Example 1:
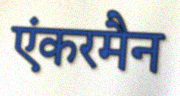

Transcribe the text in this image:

एंकरमैन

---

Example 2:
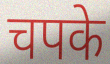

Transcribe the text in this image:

चपके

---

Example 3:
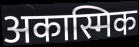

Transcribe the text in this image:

अकास्मिक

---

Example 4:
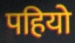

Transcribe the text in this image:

पहियो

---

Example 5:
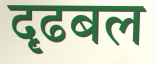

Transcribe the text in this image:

दृढबल